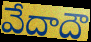
వేదాదౌ